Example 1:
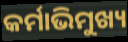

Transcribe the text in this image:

କର୍ମାଭିମୁଖ୍ୟ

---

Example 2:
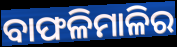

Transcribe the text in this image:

ବାଫଳିମାଳିର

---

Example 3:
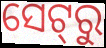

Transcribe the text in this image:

ସେଟ୍‌ରୁ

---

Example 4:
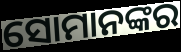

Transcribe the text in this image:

ସୋମାନଙ୍କର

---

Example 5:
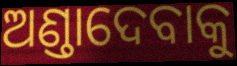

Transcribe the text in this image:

ଅଣ୍ଡାଦେବାକୁ